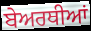
ਬੇਅਰਥੀਆਂ